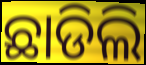
ଛାଡିଲି